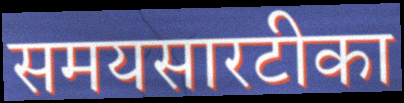
समयसारटीका